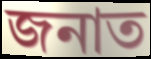
জনাত